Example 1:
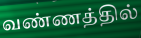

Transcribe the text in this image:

வண்ணத்தில்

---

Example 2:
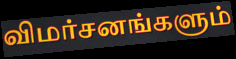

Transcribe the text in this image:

விமர்சனங்களும்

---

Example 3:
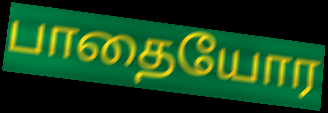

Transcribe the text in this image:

பாதையோர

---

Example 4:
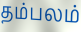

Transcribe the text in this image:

தம்பலம்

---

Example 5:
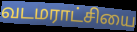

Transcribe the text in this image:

வடமராட்சியை